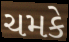
ચમકે